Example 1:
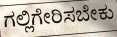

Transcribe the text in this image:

ಗಲ್ಲಿಗೇರಿಸಬೇಕು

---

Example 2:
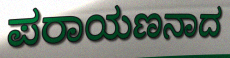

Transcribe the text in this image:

ಪರಾಯಣನಾದ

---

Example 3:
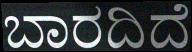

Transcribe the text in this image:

ಬಾರದಿದೆ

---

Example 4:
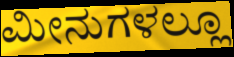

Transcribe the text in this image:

ಮೀನುಗಳಲ್ಲೂ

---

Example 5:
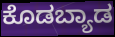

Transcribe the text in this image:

ಕೊಡಬ್ಯಾಡ